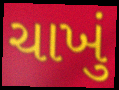
ચાખું